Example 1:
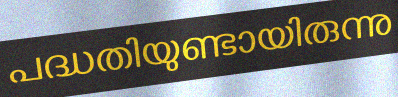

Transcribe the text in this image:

പദ്ധതിയുണ്ടായിരുന്നു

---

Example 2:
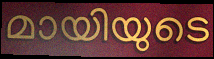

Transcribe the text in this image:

മായിയുടെ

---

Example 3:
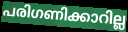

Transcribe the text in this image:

പരിഗണിക്കാറില്ല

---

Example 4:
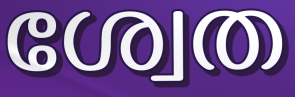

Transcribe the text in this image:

ശ്വേത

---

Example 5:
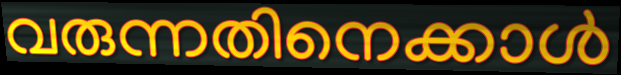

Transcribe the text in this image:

വരുന്നതിനെക്കാൾ